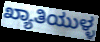
ಖ್ಯಾತಿಯುಳ್ಳ